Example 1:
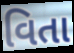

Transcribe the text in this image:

વિતા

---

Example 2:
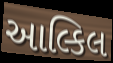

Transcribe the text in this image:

આલ્કિલ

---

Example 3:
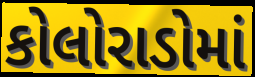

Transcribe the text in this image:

કોલોરાડોમાં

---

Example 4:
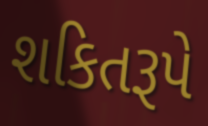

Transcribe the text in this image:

શકિતરૂપે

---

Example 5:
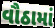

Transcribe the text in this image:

વૌઠામાં